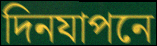
দিনযাপনে